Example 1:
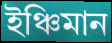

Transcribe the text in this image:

ইঞ্চিমান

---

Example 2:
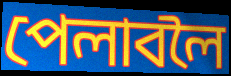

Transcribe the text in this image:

পেলাবলৈ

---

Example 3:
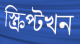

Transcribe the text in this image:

স্ক্ৰিপ্টখন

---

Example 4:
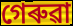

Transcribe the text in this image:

গেৰুৱা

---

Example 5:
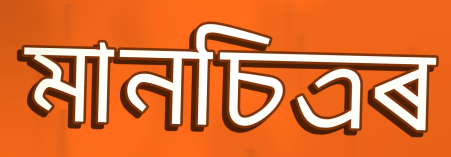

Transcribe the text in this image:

মানচিত্ৰৰ